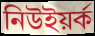
নিউইয়র্ক